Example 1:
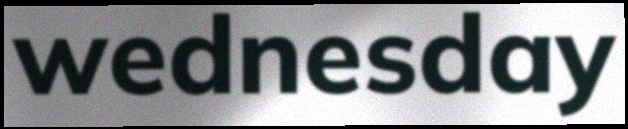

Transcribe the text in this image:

wednesday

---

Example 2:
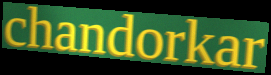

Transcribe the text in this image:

chandorkar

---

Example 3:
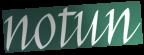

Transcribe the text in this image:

notun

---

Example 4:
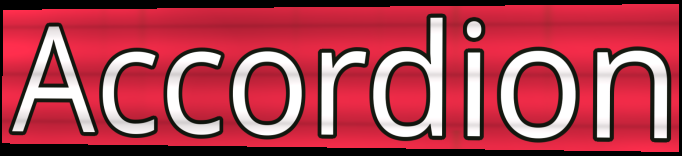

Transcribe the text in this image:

Accordion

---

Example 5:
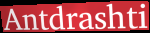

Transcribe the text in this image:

Antdrashti